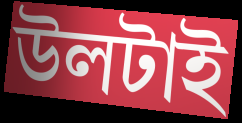
উলটাই